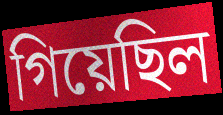
গিয়েছিল